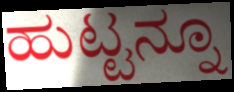
ಹುಟ್ಟನ್ನೂ